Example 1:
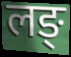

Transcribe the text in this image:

लङ्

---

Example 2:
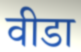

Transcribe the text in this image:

वीडा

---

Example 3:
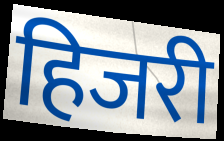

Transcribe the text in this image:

हिजरी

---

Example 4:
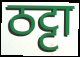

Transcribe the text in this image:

ठट्टा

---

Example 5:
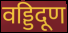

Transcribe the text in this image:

वड्डिदूण